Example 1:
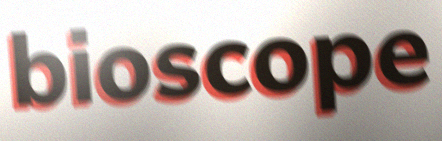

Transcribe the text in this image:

bioscope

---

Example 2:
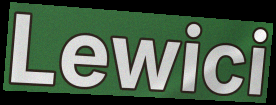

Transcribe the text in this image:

Lewici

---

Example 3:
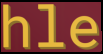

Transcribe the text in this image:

hle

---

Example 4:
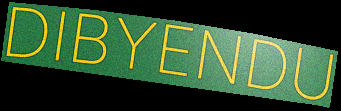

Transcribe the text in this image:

DIBYENDU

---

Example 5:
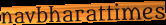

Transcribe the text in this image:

navbharattimes